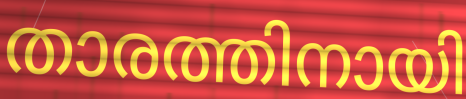
താരത്തിനായി